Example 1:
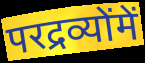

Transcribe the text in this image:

परद्रव्योंमें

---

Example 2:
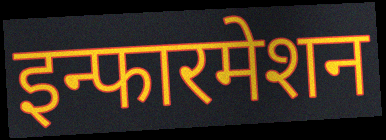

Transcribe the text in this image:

इन्फारमेशन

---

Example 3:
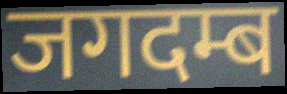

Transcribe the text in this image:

जगदम्ब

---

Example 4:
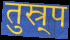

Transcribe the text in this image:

तुस्र्प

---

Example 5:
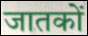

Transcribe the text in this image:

जातकों